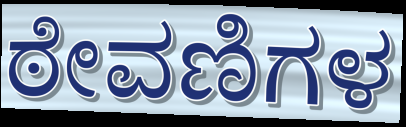
ಠೇವಣಿಗಳ